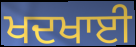
ਖਦਖਾਈ